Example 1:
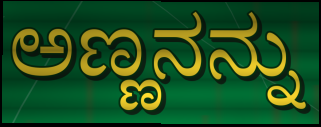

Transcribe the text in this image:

ಅಣ್ಣನನ್ನು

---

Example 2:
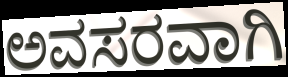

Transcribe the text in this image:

ಅವಸರವಾಗಿ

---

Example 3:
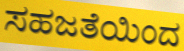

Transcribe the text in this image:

ಸಹಜತೆಯಿಂದ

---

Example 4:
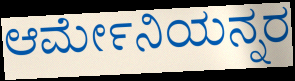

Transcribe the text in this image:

ಆರ್ಮೇನಿಯನ್ನರ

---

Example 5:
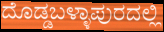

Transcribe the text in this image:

ದೊಡ್ಡಬಳ್ಳಾಪುರದಲ್ಲಿ